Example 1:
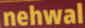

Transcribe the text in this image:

nehwal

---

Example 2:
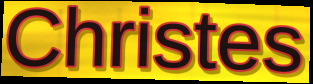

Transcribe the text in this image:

Christes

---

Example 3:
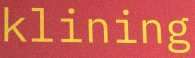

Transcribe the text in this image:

klining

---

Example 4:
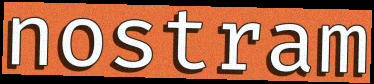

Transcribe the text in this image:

nostram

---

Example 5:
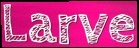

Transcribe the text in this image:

Larve